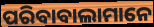
ପରିବାବାଲାମାନେ